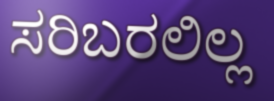
ಸರಿಬರಲಿಲ್ಲ